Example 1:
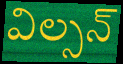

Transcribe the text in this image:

విల్సన్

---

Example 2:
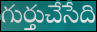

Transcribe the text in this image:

గుర్తుచేసేది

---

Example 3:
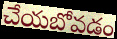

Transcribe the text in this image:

చేయబోవడం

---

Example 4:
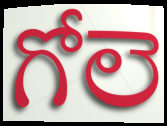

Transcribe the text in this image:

గోలె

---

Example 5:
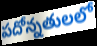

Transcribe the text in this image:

పదోన్నతులలో